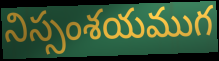
నిస్సంశయముగ